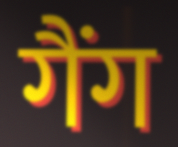
गैंग